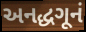
અનદ્ધગૂનં